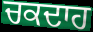
ਚਕਦਾਹ